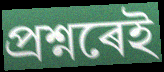
প্ৰশ্নৰেই